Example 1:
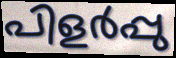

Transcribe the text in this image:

പിളർപ്പു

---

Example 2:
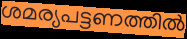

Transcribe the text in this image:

ശമര്യപട്ടണത്തിൽ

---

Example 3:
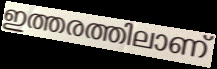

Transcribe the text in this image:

ഇത്തരത്തിലാണ്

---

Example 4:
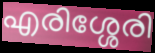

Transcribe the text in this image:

എരിശ്ശേരി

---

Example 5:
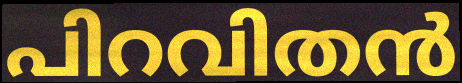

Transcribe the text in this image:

പിറവിതൻ